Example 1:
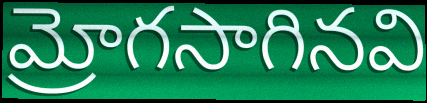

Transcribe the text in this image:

మ్రోగసాగినవి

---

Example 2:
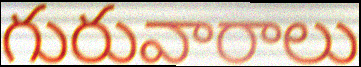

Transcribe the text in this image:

గురువారాలు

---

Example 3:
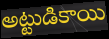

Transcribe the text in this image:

అట్టుడికాయి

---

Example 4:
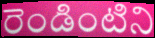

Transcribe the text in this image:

రెండింటిని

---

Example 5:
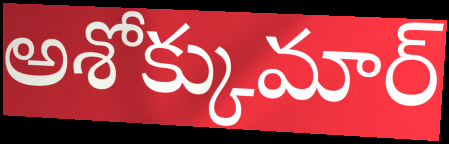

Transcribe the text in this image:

అశోక్కుమార్